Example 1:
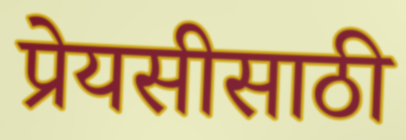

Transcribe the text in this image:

प्रेयसीसाठी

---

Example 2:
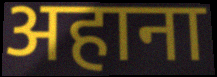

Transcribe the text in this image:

अहाना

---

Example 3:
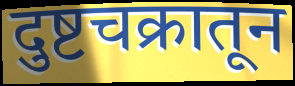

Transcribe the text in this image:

दुष्टचक्रातून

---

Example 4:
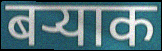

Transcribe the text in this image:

बऱ्याक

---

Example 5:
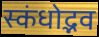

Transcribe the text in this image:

स्कंधोद्भव